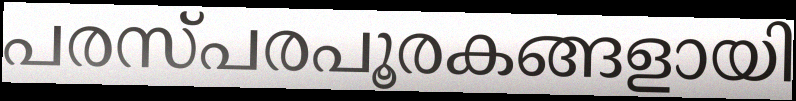
പരസ്പരപൂരകങ്ങളായി